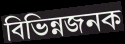
বিভিন্নজনক